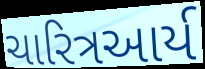
ચારિત્રઆર્ય